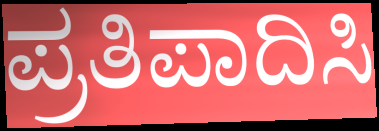
ಪ್ರತಿಪಾದಿಸಿ